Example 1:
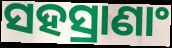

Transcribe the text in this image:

ସହସ୍ରାଣାଂ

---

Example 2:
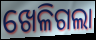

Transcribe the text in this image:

ଖେଳିଗଲା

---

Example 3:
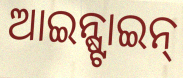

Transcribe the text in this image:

ଆଇନ୍ଷ୍ଟାଇନ୍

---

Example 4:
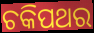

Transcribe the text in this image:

ଚକିପଥର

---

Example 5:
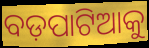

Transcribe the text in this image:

ବଡ଼ପାଟିଆକୁ